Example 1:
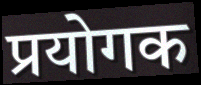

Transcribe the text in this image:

प्रयोगक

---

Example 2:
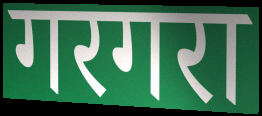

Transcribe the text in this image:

गरगरा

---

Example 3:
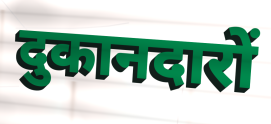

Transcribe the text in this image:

दुकानदारों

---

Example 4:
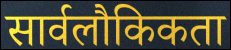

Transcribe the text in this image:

सार्वलौकिकता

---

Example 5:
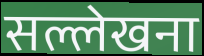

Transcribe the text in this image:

सल्लेखना